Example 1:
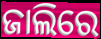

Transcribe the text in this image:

ଜାଲିରେ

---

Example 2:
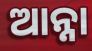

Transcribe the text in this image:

ଆନ୍ନା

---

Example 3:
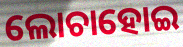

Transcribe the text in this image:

ଲୋଚାହୋଇ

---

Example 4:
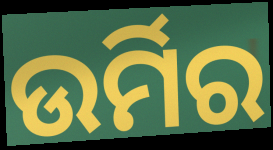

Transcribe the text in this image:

ଉର୍ମିର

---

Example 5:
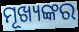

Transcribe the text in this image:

ମୂଖ୍ୟଙ୍କର